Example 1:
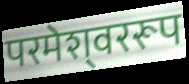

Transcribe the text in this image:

परमेश्वररूप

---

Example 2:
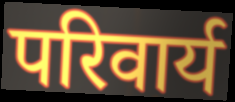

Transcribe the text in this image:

परिवार्य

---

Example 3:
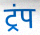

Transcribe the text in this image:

ट्रंप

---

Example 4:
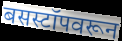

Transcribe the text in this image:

बसस्टॉपवरून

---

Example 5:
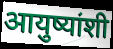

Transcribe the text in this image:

आयुष्यांशी